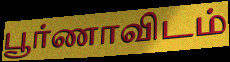
பூர்ணாவிடம்